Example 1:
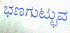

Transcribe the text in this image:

ಭಣಗುಟ್ಟುವ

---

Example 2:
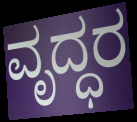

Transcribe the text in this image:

ವೃದ್ಧರ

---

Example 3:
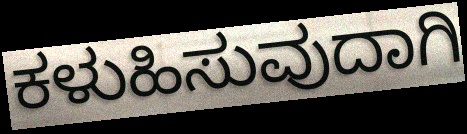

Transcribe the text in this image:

ಕಳುಹಿಸುವುದಾಗಿ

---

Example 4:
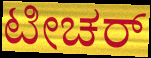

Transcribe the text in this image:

ಟೀಚರ್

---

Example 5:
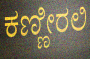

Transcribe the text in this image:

ಕಣ್ಣೀರಲಿ